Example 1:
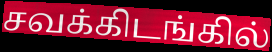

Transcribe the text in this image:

சவக்கிடங்கில்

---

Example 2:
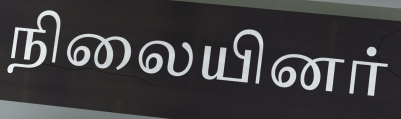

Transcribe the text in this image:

நிலையினர்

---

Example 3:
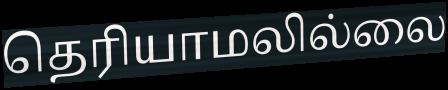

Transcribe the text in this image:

தெரியாமலில்லை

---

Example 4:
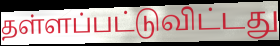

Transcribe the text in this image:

தள்ளப்பட்டுவிட்டது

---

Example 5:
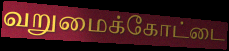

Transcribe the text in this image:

வறுமைக்கோட்டை